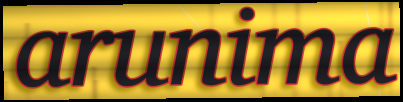
arunima